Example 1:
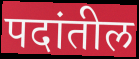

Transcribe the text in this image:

पदांतील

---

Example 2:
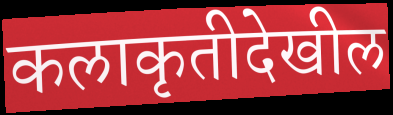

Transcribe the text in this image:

कलाकृतीदेखील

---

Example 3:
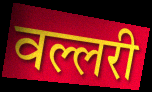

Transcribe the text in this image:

वल्लरी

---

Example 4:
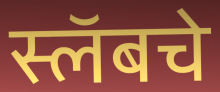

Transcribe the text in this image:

स्लॅबचे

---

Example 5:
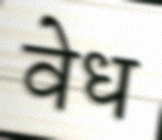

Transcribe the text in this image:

वेध